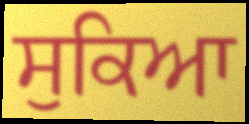
ਸੁਕਿਆ